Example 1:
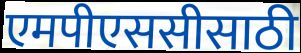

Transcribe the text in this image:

एमपीएससीसाठी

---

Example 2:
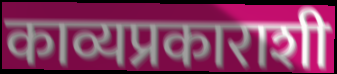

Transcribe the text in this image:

काव्यप्रकाराशी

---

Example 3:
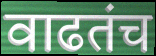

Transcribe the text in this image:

वाढतंच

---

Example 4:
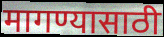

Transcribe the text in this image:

मागण्यासाठी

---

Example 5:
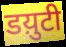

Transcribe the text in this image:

डय़ुटी